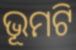
ଭୂମଟି